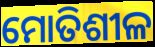
ମୋତିଶୀଳ